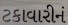
ટકાવારીનં